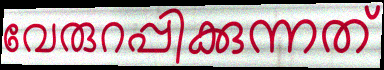
വേരുറപ്പിക്കുന്നത്